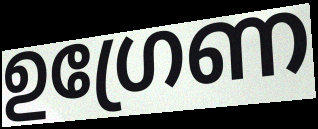
ഉഗ്രേണ